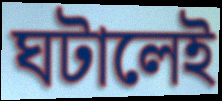
ঘটালেই